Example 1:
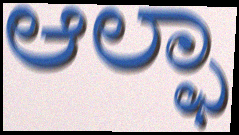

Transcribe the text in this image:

ಆಲ್ಫಾ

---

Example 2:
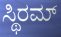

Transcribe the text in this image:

ಸ್ಥಿರಮ್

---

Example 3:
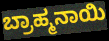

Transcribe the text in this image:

ಬ್ರಾಹ್ಮನಾಯಿ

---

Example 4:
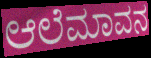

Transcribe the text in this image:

ಆಲೆಮಾವನ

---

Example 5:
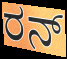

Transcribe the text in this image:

ರನ್